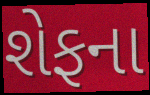
શેફના